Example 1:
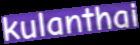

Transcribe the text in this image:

kulanthai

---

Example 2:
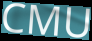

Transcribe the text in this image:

CMU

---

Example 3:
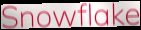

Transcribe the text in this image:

Snowflake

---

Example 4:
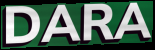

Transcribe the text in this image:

DARA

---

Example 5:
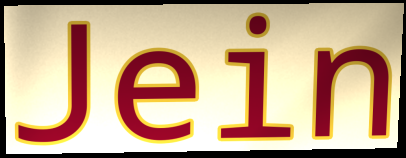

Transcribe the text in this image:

Jein